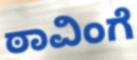
ಠಾವಿಂಗೆ